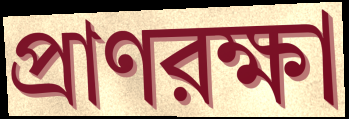
প্রাণরক্ষা